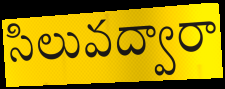
సిలువద్వారా